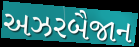
અઝરબૈજાન